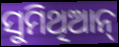
ସୁମିଥିଆନ୍